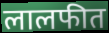
लालफीत